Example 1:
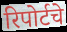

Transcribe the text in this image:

रिपोर्टचे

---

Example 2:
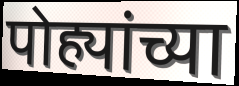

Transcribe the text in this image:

पोह्यांच्या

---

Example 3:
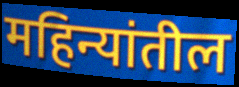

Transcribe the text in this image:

महिन्यांतील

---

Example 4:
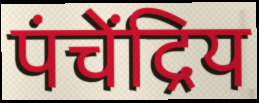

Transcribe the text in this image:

पंचेंद्रिय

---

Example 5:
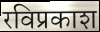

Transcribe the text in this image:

रविप्रकाश